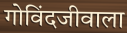
गोविंदजीवाला